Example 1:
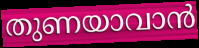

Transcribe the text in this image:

തുണയാവാൻ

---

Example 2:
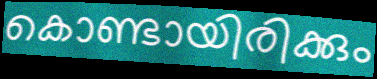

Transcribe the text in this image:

കൊണ്ടായിരിക്കും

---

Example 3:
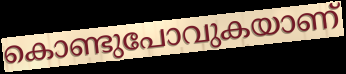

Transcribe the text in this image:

കൊണ്ടുപോവുകയാണ്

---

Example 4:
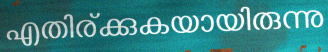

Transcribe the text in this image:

എതിര്ക്കുകയായിരുന്നു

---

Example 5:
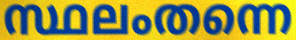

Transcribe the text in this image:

സ്ഥലംതന്നെ